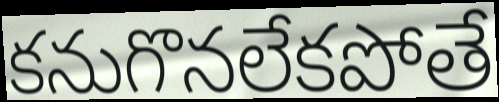
కనుగొనలేకపోతే